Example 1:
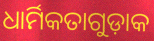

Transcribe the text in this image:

ଧାର୍ମିକତାଗୁଡ଼ାକ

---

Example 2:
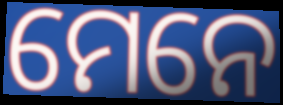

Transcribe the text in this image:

ମେନେ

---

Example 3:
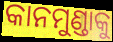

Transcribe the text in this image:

କାନମୁଣ୍ଡାକୁ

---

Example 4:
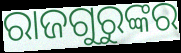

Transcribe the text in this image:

ରାଜଗୁରୁଙ୍କର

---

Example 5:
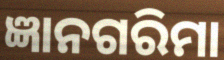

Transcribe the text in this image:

ଜ୍ଞାନଗରିମା